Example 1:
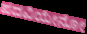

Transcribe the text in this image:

ಪದವಿಯೇನೋ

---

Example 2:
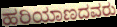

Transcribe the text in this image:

ಹರಿಯಾಣದವರು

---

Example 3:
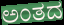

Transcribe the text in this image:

ಅಂತದ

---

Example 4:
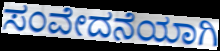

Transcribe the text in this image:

ಸಂವೇದನೆಯಾಗಿ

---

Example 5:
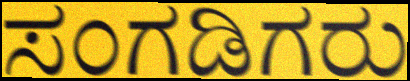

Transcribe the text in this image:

ಸಂಗಡಿಗರು